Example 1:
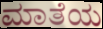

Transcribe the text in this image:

ಮಾತೆಯ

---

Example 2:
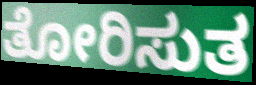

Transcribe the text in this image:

ತೋರಿಸುತ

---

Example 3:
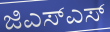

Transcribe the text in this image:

ಜಿಎಸ್ಎಸ್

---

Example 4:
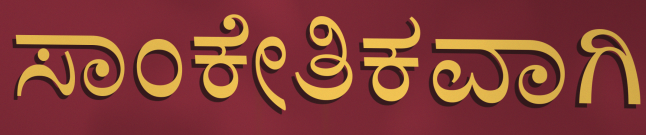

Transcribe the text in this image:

ಸಾಂಕೇತಿಕವಾಗಿ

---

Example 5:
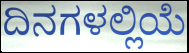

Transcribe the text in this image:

ದಿನಗಳಲ್ಲಿಯೆ